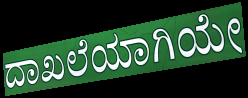
ದಾಖಲೆಯಾಗಿಯೇ